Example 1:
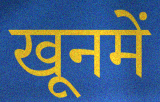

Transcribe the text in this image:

खूनमें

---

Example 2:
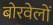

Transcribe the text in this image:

बोरवेलों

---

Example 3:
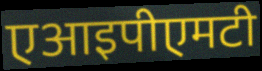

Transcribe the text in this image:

एआइपीएमटी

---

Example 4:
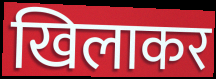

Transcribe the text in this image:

खिलाकर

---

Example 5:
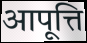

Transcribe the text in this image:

आपूत्ति